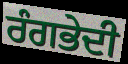
ਰੰਗਭੇਦੀ